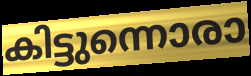
കിട്ടുന്നൊരാ